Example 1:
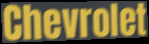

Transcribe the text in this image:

Chevrolet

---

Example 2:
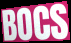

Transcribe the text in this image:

BOCS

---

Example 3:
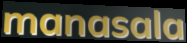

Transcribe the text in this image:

manasala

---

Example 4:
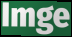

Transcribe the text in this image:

Imge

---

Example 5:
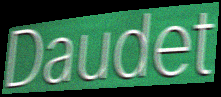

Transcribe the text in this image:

Daudet